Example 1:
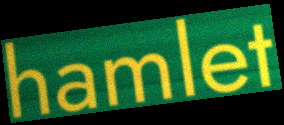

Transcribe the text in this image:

hamlet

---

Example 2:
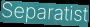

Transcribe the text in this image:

Separatist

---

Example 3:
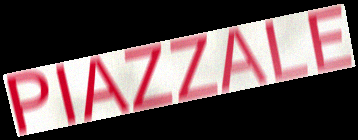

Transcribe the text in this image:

PIAZZALE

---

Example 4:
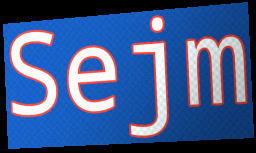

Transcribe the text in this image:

Sejm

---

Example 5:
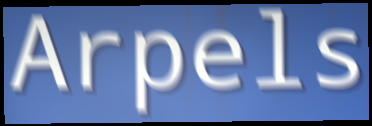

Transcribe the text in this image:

Arpels